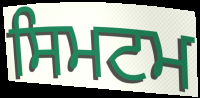
ਸਿਮਟਮ